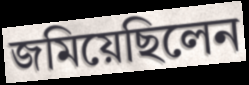
জমিয়েছিলেন